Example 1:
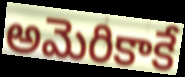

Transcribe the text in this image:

అమెరికాకే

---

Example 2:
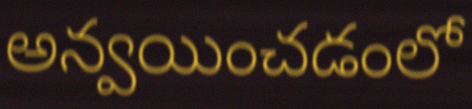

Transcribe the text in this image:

అన్వయించడంలో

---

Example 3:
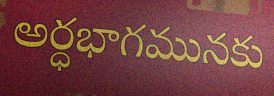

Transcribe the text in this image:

అర్ధభాగమునకు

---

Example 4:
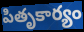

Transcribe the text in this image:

పితృకార్యం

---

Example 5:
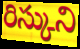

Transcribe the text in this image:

రిస్కుని